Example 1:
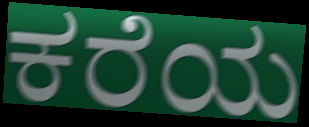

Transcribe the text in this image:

ಕರೆಯ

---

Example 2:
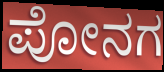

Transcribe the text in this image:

ಪೋನಗ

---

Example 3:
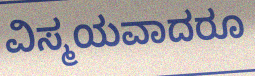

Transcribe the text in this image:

ವಿಸ್ಮಯವಾದರೂ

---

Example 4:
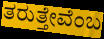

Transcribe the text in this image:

ತರುತ್ತೇವೆಂಬ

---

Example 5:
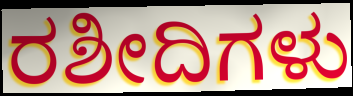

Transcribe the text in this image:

ರಶೀದಿಗಳು